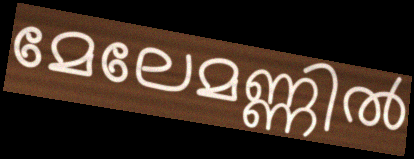
മേലേമണ്ണിൽ